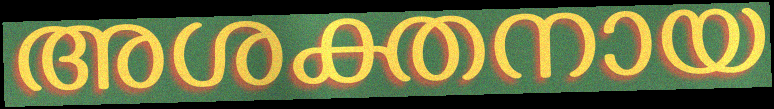
അശക്തനായ